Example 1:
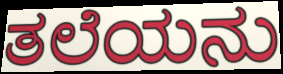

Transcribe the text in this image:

ತಲೆಯನು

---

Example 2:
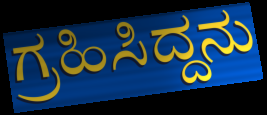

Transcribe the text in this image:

ಗ್ರಹಿಸಿದ್ದನು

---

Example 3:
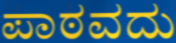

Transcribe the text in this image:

ಪಾಠವದು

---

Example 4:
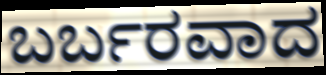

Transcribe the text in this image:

ಬರ್ಬರವಾದ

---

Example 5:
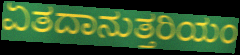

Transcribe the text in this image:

ಏತದಾನುತ್ತರಿಯಂ